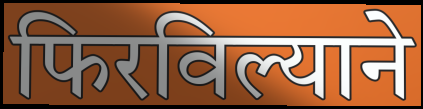
फिरविल्याने